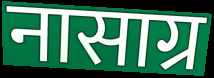
नासाग्र